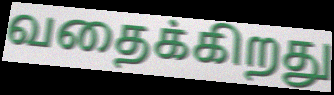
வதைக்கிறது